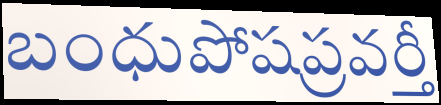
బంధుపోషప్రవర్తీ